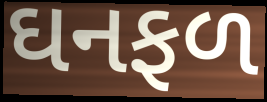
ઘનફળ